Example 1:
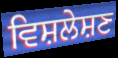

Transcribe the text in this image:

ਵਿਸ਼ਲੇਸ਼ਣ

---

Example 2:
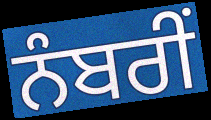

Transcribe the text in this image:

ਨੰਬਰੀਂ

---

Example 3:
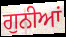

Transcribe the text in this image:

ਗੁਨੀਆਂ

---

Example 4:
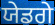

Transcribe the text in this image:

ਯੇਡਗੇ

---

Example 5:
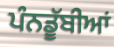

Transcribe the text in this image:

ਪੰਨਡੂੱਬੀਆਂ